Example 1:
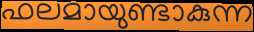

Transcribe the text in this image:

ഫലമായുണ്ടാകുന്ന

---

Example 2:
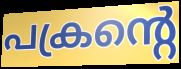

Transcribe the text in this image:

പക്രന്റെ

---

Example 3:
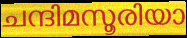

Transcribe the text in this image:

ചന്ദിമസൂരിയാ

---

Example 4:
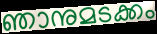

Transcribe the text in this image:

ഞാനുമടക്കം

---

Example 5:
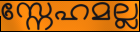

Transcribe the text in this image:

സ്നേഹമല്ല